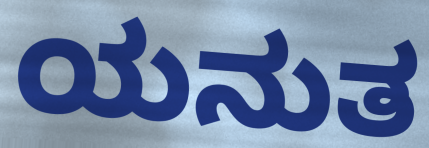
ಯನುತ